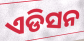
ଏଡିସନ